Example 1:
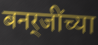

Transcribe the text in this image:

बनर्जींच्या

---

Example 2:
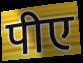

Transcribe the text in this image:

पीए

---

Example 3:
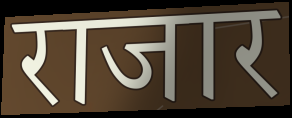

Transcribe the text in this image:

राजार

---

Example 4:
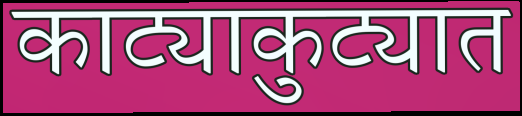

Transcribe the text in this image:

काट्याकुट्यात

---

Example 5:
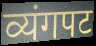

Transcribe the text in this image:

व्यंगपट